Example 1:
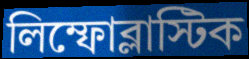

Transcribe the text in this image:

লিম্ফোব্লাস্টিক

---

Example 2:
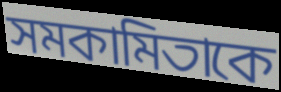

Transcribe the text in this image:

সমকামিতাকে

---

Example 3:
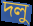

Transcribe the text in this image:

দলু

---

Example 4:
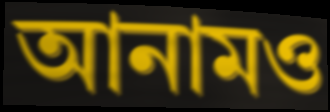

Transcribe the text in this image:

আনামও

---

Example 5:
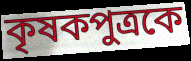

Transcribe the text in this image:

কৃষকপুত্রকে